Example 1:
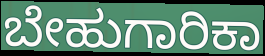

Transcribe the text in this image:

ಬೇಹುಗಾರಿಕಾ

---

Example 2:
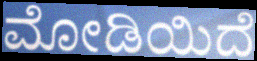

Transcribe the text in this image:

ಮೋಡಿಯಿದೆ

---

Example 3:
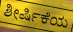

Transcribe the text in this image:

ಶೀರ್ಷಿಕೆಯ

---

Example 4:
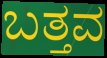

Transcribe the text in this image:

ಬತ್ತವ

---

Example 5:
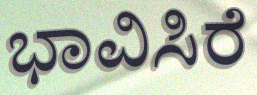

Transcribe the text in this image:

ಭಾವಿಸಿರೆ